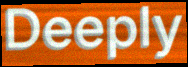
Deeply